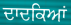
ਦਾਦਕਿਆਂ